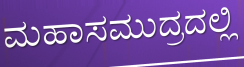
ಮಹಾಸಮುದ್ರದಲ್ಲಿ